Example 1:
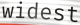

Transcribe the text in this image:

widest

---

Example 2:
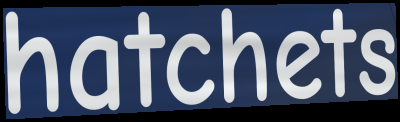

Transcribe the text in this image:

hatchets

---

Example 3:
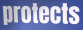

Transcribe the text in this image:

protects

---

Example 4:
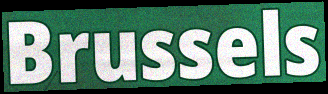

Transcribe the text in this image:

Brussels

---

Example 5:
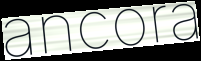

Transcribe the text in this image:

ancora